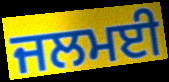
ਜਲਮਈ